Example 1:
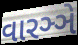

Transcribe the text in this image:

વારઞ્ઞે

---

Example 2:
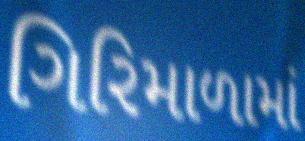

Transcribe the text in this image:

ગિરિમાળામાં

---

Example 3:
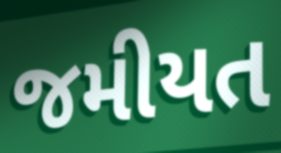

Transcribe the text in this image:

જમીયત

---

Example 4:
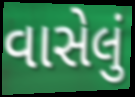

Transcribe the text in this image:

વાસેલું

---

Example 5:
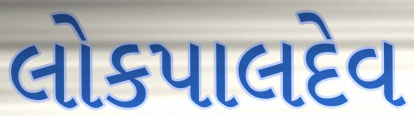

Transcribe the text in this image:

લોકપાલદેવ